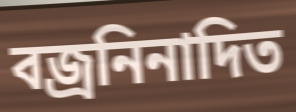
বজ্রনিনাদিত